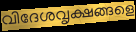
വിദേശവൃക്ഷങ്ങളെ